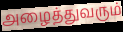
அழைத்துவரும்